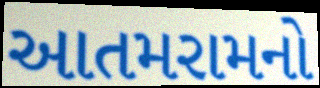
આતમરામનો